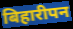
बिहारीपन